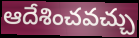
ఆదేశించవచ్చు